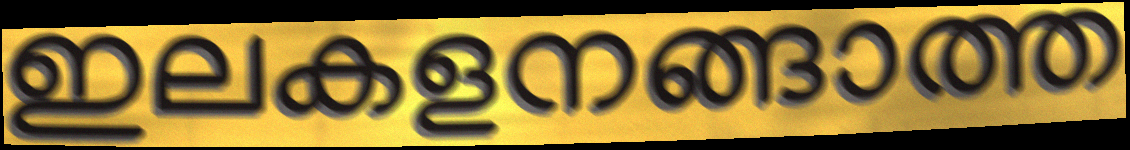
ഇലകളനങ്ങാത്ത